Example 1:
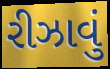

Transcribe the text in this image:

રીઝાવું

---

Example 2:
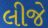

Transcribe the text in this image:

લીજે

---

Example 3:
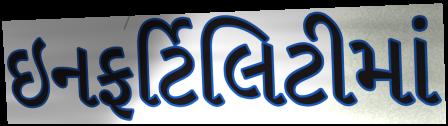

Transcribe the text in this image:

ઇનફર્ટિલિટીમાં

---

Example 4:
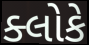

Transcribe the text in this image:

ક્લોકે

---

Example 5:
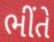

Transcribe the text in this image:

ભીંતે